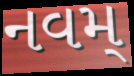
નવમ્